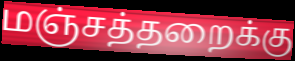
மஞ்சத்தறைக்கு